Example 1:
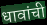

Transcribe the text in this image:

धावांची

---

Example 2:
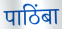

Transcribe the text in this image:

पाठिंबा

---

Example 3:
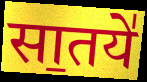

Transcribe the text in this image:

सा॒तये॑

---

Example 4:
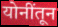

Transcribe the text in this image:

योनींतून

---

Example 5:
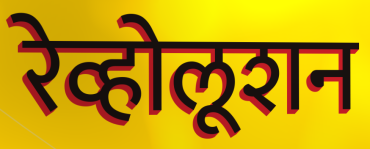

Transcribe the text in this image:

रेव्होलूशन